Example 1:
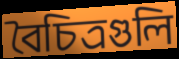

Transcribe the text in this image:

বৈচিত্রগুলি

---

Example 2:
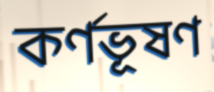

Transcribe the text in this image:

কর্ণভূষণ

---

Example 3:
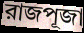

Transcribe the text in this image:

রাজপূজা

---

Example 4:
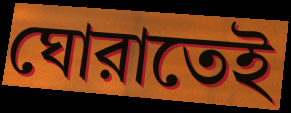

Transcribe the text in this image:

ঘোরাতেই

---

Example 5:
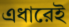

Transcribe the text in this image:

এধারেই